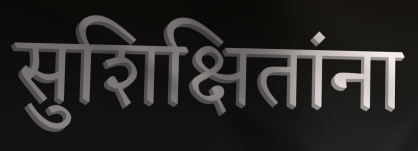
सुशिक्षितांना